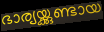
ഭാര്യയ്ക്കുണ്ടായ